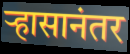
ऱ्हासानंतर